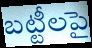
బట్టీలపై